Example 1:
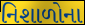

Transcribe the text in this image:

નિશાળોના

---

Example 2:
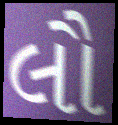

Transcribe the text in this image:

લૌ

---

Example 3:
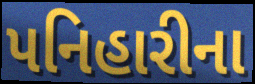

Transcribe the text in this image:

પનિહારીના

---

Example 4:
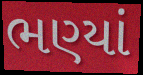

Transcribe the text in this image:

ભણ્યાં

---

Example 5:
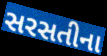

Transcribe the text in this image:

સરસતીના